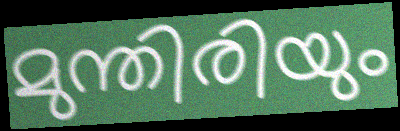
മുന്തിരിയും